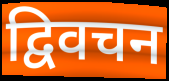
द्विवचन